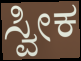
ಸ್ವೀಕ